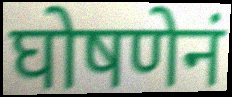
घोषणेनं